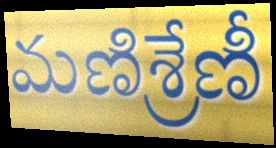
మణిశ్రేణీ